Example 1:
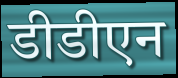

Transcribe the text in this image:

डीडीएन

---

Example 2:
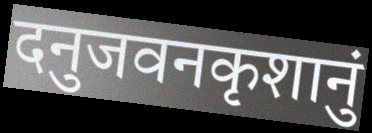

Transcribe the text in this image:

दनुजवनकृशानुं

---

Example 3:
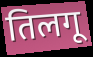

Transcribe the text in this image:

तिलगू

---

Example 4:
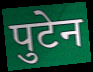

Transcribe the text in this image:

पुटेन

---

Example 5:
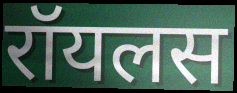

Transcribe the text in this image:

रॉयलस